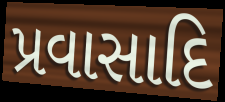
પ્રવાસાદિ